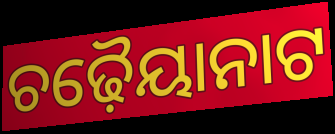
ଚଢ଼ୈୟାନାଟ